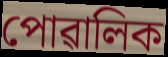
পোৱালিক